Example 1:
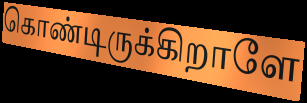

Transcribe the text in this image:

கொண்டிருக்கிறாளே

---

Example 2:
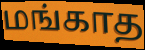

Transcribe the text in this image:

மங்காத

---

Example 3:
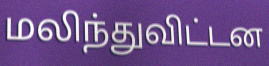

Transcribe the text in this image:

மலிந்துவிட்டன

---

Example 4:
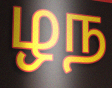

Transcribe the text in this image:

ழந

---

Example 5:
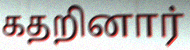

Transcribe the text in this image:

கதறினார்